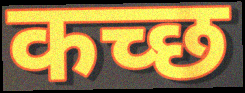
कच्‍छ